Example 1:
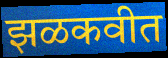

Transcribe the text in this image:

झळकवीत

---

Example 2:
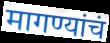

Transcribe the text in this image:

मागण्यांचं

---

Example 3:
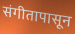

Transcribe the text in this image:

संगीतापासून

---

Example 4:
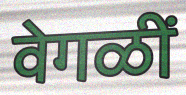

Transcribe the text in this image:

वेगळीं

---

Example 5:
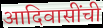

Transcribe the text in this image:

आदिवासींची